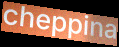
cheppina